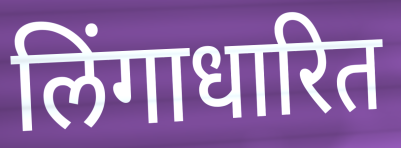
लिंगाधारित